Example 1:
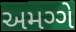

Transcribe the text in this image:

અમગ્ગે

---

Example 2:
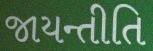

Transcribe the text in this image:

જાયન્તીતિ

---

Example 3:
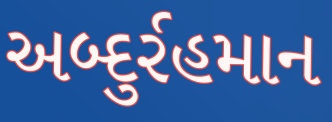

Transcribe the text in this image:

અબ્દુર્રહમાન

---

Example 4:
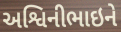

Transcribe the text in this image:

અશ્વિનીભાઇને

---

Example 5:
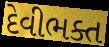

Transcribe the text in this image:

દેવીભક્ત